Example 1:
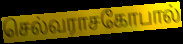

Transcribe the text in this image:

செல்வராசகோபால்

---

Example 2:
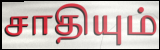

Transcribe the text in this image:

சாதியும்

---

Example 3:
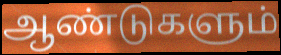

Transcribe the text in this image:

ஆண்டுகளும்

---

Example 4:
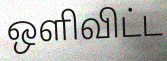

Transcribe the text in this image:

ஒளிவிட்ட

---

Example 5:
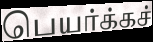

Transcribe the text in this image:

பெயர்க்கச்